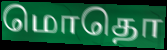
மொதொ